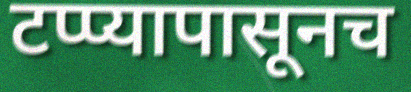
टप्प्यापासूनच